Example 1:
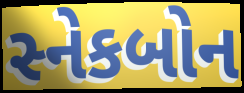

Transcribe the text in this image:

સ્નેકબોન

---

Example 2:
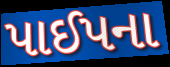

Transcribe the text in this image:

પાઈપના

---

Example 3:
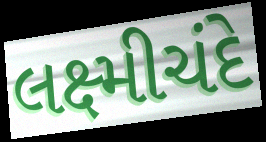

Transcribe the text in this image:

લક્ષ્મીચંદે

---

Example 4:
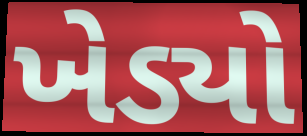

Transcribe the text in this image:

ખેડ્યો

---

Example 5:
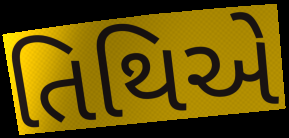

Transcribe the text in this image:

તિથિએ